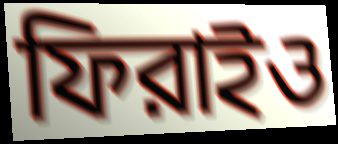
ফিরাইও